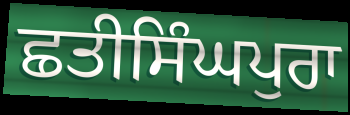
ਛਤੀਸਿੰਘਪੁਰਾ